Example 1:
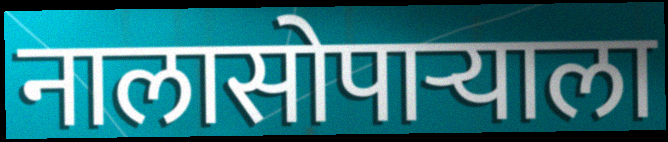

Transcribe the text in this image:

नालासोपाऱ्याला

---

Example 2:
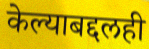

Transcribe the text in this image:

केल्याबद्दलही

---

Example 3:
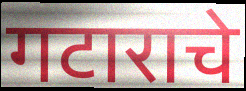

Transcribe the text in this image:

गटाराचे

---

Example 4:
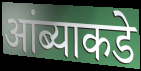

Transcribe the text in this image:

आंब्याकडे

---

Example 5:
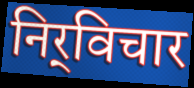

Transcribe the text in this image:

निर्विचार